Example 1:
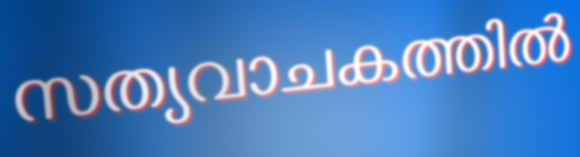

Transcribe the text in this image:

സത്യവാചകത്തിൽ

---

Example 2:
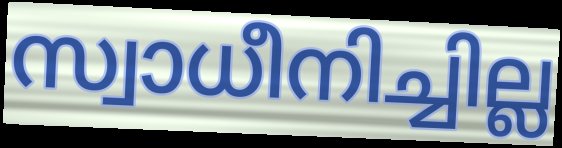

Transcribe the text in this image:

സ്വാധീനിച്ചില്ല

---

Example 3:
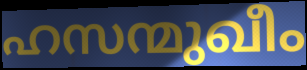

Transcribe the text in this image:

ഹസന്മുഖീം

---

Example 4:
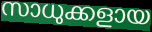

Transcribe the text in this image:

സാധുക്കളായ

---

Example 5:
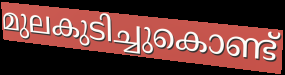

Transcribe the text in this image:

മുലകുടിച്ചുകൊണ്ട്